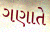
ગણાતે